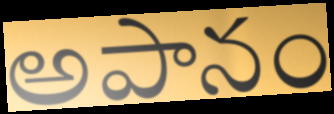
అపానం